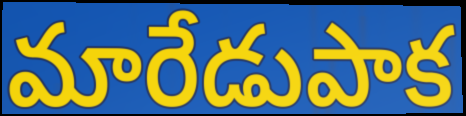
మారేడుపాక